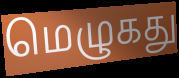
மெழுகது